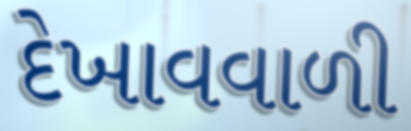
દેખાવવાળી